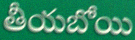
తీయబోయి